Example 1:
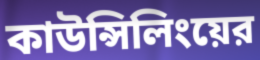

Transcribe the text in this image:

কাউন্সিলিংয়ের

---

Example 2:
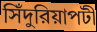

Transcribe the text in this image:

সিঁদুরিয়াপটী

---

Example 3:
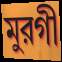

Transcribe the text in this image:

মুরগী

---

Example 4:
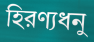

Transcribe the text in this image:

হিরণ্যধনু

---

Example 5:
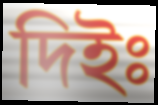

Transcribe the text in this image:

দিইঃ